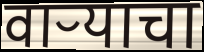
वाऱ्याचा